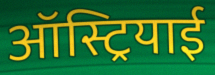
ऑस्ट्रियाई